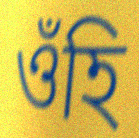
ওঁহি